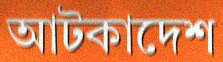
আটকাদেশ